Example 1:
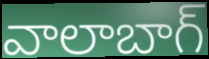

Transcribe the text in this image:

వాలాబాగ్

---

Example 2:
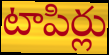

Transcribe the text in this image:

టాపిర్లు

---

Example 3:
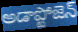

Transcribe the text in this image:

అడాప్టోజెన్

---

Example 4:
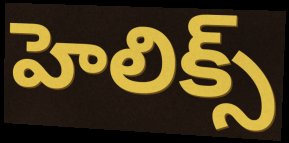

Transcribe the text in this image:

హెలిక్స్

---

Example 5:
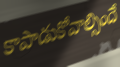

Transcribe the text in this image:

కాపాడుకోవాల్సిందే